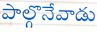
పాల్గొనేవాడు